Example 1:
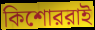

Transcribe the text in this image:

কিশোররাই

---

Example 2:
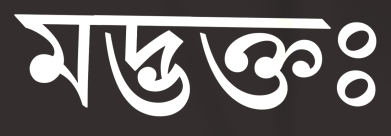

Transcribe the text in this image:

মদ্ভক্তঃ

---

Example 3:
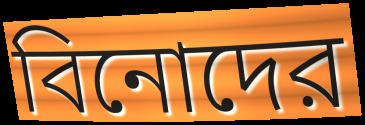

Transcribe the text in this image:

বিনোদের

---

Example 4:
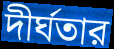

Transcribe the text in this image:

দীর্ঘতার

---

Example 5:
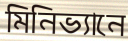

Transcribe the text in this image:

মিনিভ্যানে